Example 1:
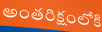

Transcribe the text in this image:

అంతరిక్షంలోకి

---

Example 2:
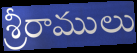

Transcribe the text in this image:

శ్రీరాములు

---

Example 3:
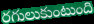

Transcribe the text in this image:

రగులుకుంటుంది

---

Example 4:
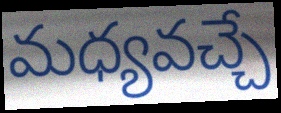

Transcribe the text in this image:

మధ్యవచ్చే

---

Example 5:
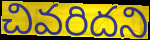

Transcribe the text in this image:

చివరిదని